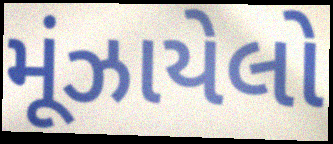
મૂંઝાયેલો